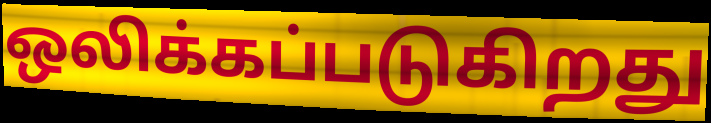
ஒலிக்கப்படுகிறது